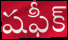
షఫీక్